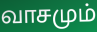
வாசமும்